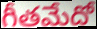
గీతమేదో